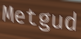
Metgud